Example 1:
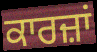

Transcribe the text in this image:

ਕਾਰਜ਼ਾਂ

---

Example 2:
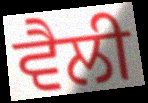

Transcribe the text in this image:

ਵੈਲੀ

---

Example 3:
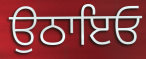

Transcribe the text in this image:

ਉਠਾਇਓ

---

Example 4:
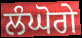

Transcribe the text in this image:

ਲੰਘੋਗੇ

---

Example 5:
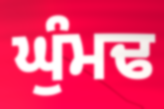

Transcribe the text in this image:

ਘੁੰਮਢ